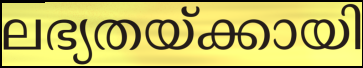
ലഭ്യതയ്ക്കായി